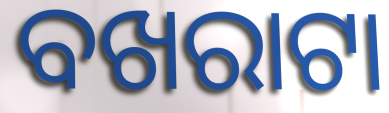
ବଖରାଟା